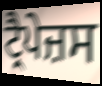
ਟ੍ਰੈਪੇਜ਼ਸ